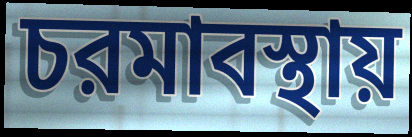
চরমাবস্থায়